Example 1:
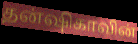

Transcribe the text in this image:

தன்ஷிகாவின்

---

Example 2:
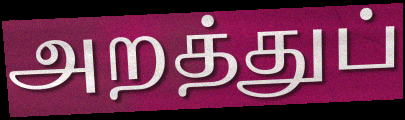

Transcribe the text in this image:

அறத்துப்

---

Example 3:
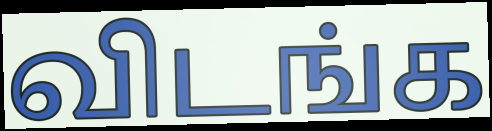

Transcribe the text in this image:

விடங்க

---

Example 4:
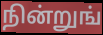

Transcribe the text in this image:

நின்றுங்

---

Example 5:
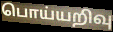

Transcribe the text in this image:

பொய்யறிவு